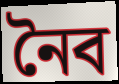
নৈব